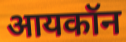
आयकॉन